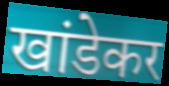
खांडेकर